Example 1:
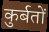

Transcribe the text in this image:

कुर्बतों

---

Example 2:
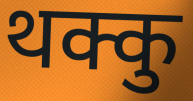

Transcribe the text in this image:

थक्कु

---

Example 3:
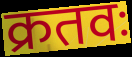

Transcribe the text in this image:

क्रतवः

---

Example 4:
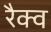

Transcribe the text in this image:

रैक्व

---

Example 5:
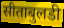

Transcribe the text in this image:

सीताबुलडी